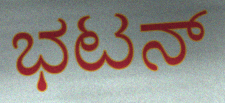
ಭಟನ್